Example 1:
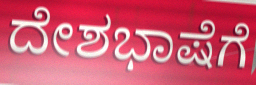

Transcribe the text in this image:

ದೇಶಭಾಷೆಗೆ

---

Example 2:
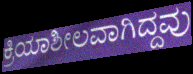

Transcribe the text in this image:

ಕ್ರಿಯಾಶೀಲವಾಗಿದ್ದವು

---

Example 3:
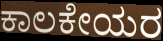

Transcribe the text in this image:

ಕಾಲಕೇಯರ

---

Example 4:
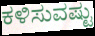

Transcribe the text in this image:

ಕಳಿಸುವಷ್ಟು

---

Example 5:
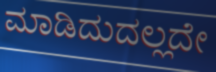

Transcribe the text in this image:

ಮಾಡಿದುದಲ್ಲದೇ